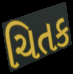
ચિતક